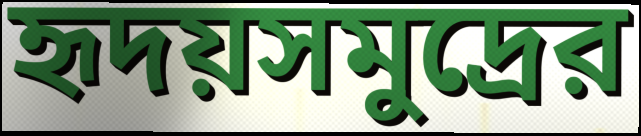
হৃদয়সমুদ্রের